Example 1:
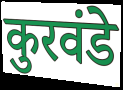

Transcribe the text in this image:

कुरवंडे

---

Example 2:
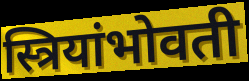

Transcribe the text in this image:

स्त्रियांभोवती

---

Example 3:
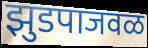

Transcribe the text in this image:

झुडपाजवळ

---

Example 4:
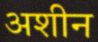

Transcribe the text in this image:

अशीन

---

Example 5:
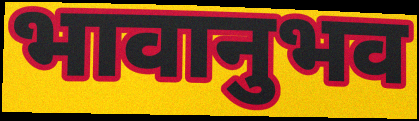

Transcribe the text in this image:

भावानुभव